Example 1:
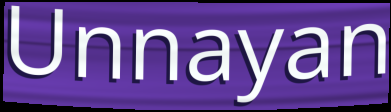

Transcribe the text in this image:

Unnayan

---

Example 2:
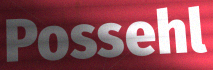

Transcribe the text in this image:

Possehl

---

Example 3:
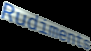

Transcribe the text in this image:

Rudiments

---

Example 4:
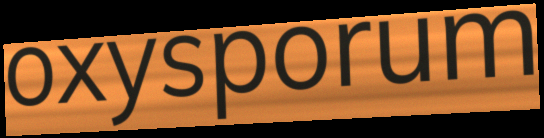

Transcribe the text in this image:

oxysporum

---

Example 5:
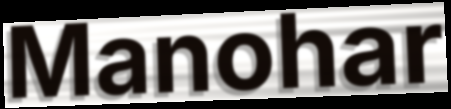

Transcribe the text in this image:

Manohar